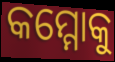
କମ୍ମୋକୁ